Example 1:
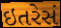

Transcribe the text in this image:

ઇતરેસં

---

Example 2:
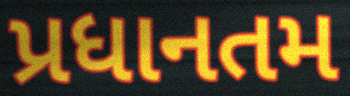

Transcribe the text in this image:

પ્રધાનતમ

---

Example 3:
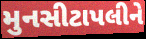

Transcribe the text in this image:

મુનસીટાપલીને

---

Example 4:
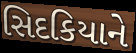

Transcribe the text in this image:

સિદકિયાને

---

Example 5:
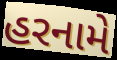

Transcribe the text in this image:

હરનામે